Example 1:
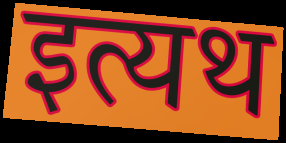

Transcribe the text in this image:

इत्यथ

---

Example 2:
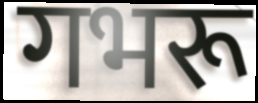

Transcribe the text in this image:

गभरू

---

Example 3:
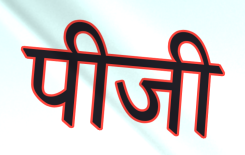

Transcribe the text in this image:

पीजी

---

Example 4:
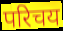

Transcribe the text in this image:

परिचय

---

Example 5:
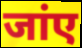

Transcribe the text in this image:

जांए